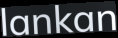
lankan